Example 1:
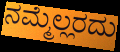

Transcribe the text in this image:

ನಮ್ಮೆಲ್ಲರದು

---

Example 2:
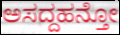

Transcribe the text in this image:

ಅಸದ್ದಹನ್ತೋ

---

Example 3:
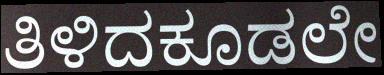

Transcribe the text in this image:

ತಿಳಿದಕೂಡಲೇ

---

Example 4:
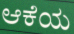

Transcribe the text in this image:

ಆಕೆಯ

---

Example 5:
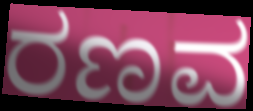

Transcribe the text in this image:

ರಣವ